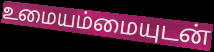
உமையம்மையுடன்